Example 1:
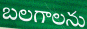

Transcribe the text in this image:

బలగాలను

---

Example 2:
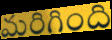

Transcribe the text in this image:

మరిగింది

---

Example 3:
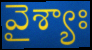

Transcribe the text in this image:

వైశ్యాః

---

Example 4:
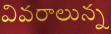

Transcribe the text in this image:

వివరాలున్న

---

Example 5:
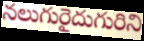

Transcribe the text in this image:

నలుగురైదుగురిని